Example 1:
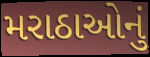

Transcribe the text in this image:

મરાઠાઓનું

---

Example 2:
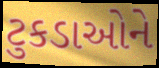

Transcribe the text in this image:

ટુકડાઓને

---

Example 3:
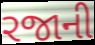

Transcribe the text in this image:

રજાની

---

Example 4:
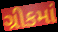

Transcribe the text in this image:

ગ્રીકમાં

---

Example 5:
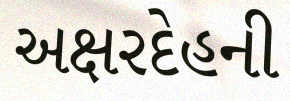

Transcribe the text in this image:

અક્ષરદેહની